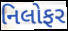
નિલોફર